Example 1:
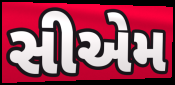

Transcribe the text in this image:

સીએમ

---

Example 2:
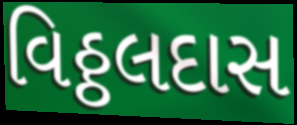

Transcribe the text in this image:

વિઠ્ઠલદાસ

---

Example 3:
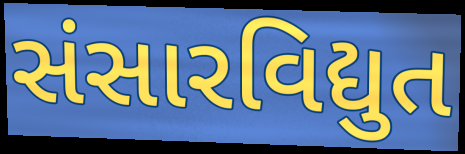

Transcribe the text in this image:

સંસારવિદ્યુત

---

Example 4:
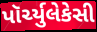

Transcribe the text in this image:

પૉર્ચ્યુલેકેસી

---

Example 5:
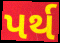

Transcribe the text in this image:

પર્થ